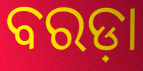
ବରଡ଼ା